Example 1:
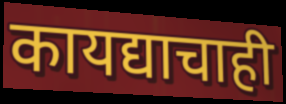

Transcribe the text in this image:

कायद्याचाही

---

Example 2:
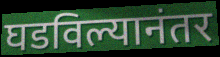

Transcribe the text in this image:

घडविल्यानंतर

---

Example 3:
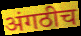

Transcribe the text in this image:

अंगठीच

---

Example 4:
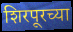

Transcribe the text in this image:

शिरपूरच्या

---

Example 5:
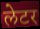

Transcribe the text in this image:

लेटर